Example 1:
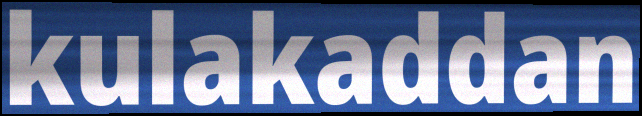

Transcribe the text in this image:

kulakaddan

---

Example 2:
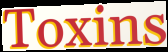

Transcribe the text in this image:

Toxins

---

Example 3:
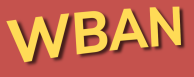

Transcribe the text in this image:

WBAN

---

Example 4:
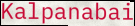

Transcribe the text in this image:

Kalpanabai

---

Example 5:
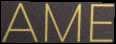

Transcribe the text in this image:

AME